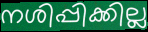
നശിപ്പിക്കില്ല